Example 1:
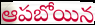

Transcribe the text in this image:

ఆపబోయిన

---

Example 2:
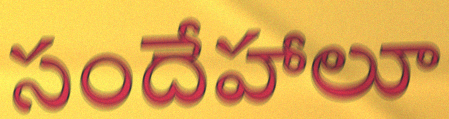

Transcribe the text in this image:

సందేహాలూ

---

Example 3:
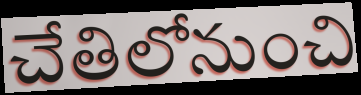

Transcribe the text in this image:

చేతిలోనుంచి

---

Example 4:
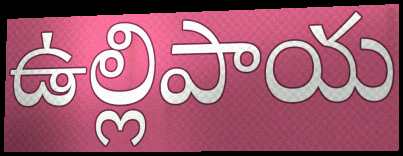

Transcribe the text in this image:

ఉల్లిపాయ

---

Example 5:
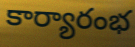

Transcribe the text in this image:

కార్యారంభ